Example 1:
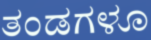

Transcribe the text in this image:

ತಂಡಗಳೂ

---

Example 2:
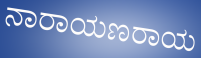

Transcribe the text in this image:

ನಾರಾಯಣರಾಯ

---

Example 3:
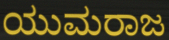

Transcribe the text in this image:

ಯುಮರಾಜ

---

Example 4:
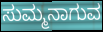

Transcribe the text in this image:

ಸುಮ್ಮನಾಗುವ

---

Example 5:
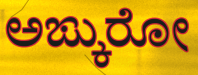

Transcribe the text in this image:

ಅಙ್ಕುರೋ